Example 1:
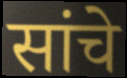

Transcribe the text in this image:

सांचे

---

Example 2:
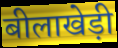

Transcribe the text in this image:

बीलाखेड़ी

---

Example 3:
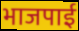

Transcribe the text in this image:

भाजपाई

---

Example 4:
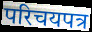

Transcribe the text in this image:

परिचयपत्र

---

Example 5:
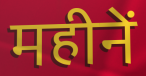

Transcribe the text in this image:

महीनें